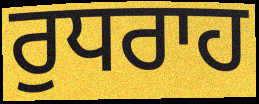
ਰੁਧਰਾਹ